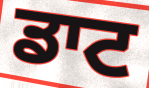
ਡਾਟ